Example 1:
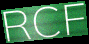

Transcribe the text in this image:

RCF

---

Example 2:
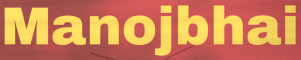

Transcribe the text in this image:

Manojbhai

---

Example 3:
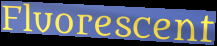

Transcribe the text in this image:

Fluorescent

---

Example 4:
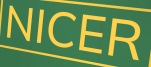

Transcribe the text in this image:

NICER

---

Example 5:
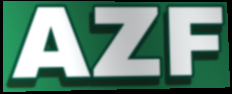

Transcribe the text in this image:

AZF